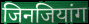
जिनजियांग